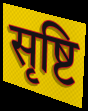
सृष्टि